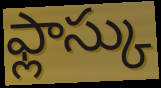
ఫ్లాస్కు